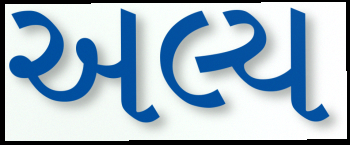
અલ્ય